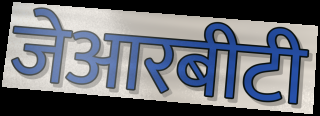
जेआरबीटी